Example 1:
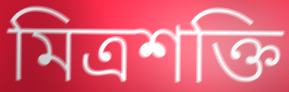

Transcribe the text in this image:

মিত্রশক্তি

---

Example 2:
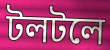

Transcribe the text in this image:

টলটলে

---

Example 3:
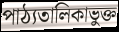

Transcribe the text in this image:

পাঠ্যতালিকাভুক্ত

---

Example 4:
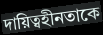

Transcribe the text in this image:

দায়িত্বহীনতাকে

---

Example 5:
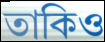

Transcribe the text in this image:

তাকিও